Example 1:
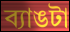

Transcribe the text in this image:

ব্যাঙটা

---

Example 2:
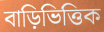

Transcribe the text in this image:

বাড়িভিত্তিক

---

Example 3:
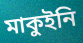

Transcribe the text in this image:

মাকুইনি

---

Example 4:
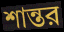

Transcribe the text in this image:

শান্তর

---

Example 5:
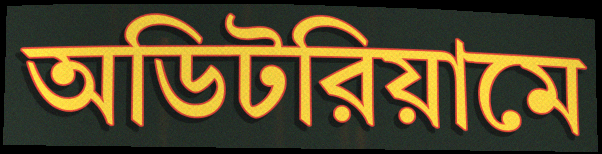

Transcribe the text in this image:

অডিটরিয়ামে